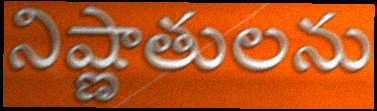
నిష్ణాతులను